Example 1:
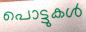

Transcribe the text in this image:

പൊട്ടുകൾ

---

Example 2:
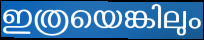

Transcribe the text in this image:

ഇത്രയെങ്കിലും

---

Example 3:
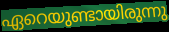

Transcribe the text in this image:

ഏറെയുണ്ടായിരുന്നു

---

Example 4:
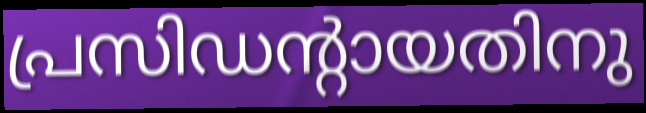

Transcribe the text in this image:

പ്രസിഡന്റായതിനു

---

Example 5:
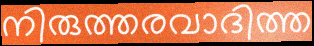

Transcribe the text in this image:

നിരുത്തരവാദിത്ത